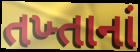
તખ્તાનાં